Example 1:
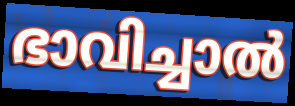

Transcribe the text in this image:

ഭാവിച്ചാൽ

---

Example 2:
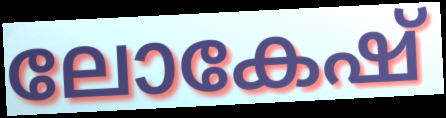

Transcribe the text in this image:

ലോകേഷ്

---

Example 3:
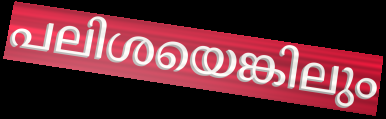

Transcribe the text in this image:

പലിശയെങ്കിലും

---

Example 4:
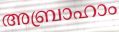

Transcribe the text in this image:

അബ്രാഹാം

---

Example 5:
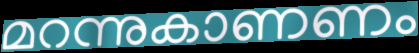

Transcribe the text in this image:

മറന്നുകാണണം